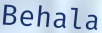
Behala